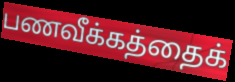
பணவீக்கத்தைக்